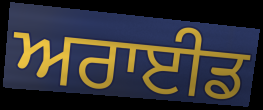
ਅਰਾਈਡ